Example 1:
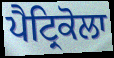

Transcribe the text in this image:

ਪੈਟ੍ਰਿਕੋਲਾ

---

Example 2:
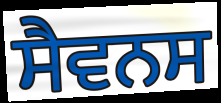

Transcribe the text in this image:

ਸੈਵਨਸ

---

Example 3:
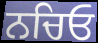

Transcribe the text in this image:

ਨਚਿਓ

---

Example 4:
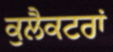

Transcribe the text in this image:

ਕੁਲੈਕਟਰਾਂ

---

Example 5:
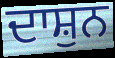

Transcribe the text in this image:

ਦਾਸ਼ੁਨ